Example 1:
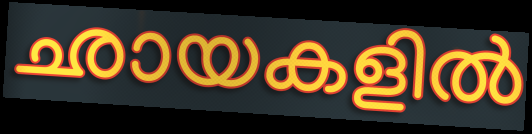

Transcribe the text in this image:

ഛായകളിൽ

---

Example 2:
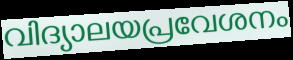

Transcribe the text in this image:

വിദ്യാലയപ്രവേശനം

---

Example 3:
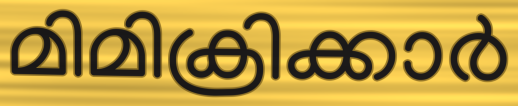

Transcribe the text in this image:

മിമിക്രിക്കാർ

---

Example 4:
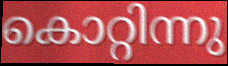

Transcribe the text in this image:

കൊറ്റിന്നു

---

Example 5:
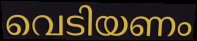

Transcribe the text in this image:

വെടിയണം